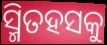
ସ୍ମିତହସକୁ